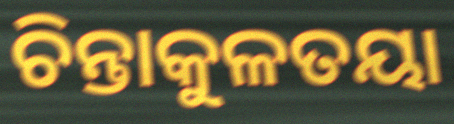
ଚିନ୍ତାକୁଳତୟା